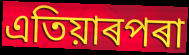
এতিয়াৰপৰা